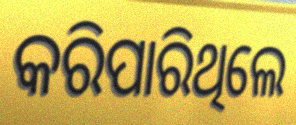
କରିପାରିଥିଲେ